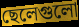
ছেলেগুলো